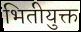
भितीयुक्त